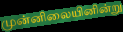
முன்னிலையினின்று